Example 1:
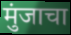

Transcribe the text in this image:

मुंजाचा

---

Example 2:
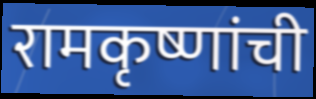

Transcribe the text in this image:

रामकृष्णांची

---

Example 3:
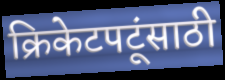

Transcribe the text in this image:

क्रिकेटपटूंसाठी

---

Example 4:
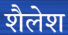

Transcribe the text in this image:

शैलेश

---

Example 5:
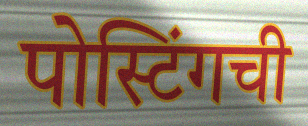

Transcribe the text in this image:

पोस्टिंगची